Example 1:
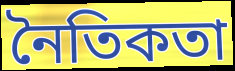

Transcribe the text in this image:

নৈতিকতা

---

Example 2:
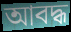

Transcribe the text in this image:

আবদ্ধ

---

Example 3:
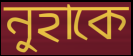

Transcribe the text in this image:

নুহাকে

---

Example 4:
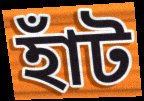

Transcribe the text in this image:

হাঁট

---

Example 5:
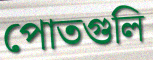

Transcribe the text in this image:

পোতগুলি